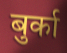
बुर्का